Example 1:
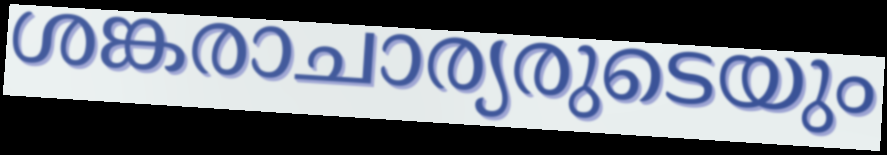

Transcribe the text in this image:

ശങ്കരാചാര്യരുടെയും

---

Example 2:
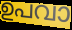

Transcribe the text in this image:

ഉപവാ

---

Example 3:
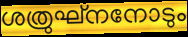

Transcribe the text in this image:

ശത്രുഘ്നനോടും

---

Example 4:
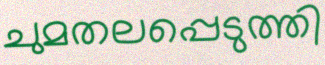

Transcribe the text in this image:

ചുമതലപ്പെടുത്തി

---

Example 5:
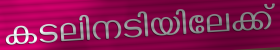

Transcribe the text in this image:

കടലിനടിയിലേക്ക്